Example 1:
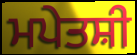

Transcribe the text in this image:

ਮਪੇਤਸ਼ੀ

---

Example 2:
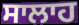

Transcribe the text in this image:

ਸਾਲਾਹ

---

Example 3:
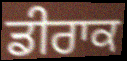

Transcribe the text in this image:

ਡੀਰਾਕ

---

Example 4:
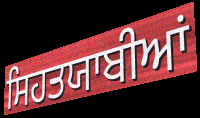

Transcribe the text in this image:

ਸਿਹਤਯਾਬੀਆਂ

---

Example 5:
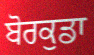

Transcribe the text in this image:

ਬੋਰਕੁਡਾ